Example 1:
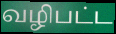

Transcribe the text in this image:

வழிபட்ட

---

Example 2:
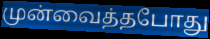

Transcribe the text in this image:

முன்வைத்தபோது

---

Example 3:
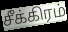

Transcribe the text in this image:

சீக்கிரம்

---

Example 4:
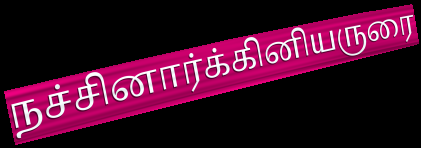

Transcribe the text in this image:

நச்சினார்க்கினியருரை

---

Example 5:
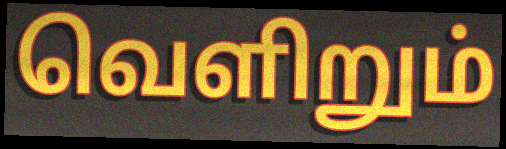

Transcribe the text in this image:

வெளிறும்